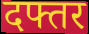
दफ्तर